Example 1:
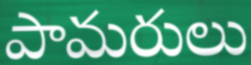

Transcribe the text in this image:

పామరులు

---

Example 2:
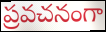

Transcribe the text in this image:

ప్రవచనంగా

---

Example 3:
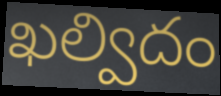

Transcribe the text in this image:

ఖల్విదం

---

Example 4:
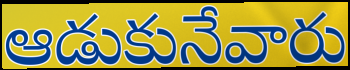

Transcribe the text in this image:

ఆడుకునేవారు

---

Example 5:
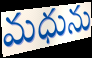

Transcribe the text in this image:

మధును